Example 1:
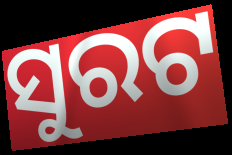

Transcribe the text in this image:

ସୁରଟ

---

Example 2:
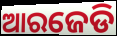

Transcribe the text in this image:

ଆରଜେଡି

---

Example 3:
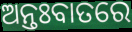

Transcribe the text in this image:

ଅନ୍ତଃବାତରେ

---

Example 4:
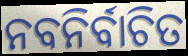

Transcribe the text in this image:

ନବନିର୍ବାଚିତ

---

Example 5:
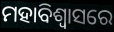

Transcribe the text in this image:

ମହାବିଶ୍ୱାସରେ